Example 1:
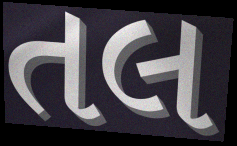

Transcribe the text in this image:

તલ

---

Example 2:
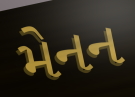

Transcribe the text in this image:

મેનન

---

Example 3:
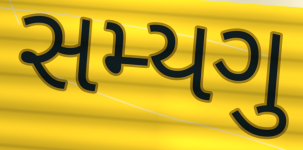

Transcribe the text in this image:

સમ્યગુ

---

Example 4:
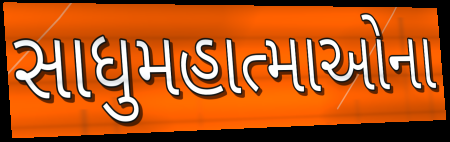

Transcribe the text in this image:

સાધુમહાત્માઓના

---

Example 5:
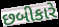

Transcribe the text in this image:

છબીકારે